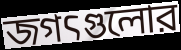
জগৎগুলোর